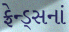
ફ્રેન્ડ્સનાં